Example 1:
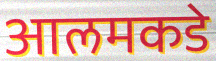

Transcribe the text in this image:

आलमकडे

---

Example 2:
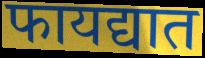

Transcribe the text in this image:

फायद्यात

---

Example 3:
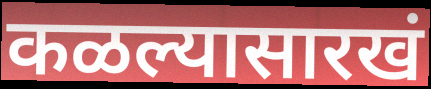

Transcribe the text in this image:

कळल्यासारखं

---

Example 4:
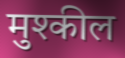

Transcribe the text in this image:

मुश्कील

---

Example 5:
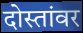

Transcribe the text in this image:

दोस्तांवर